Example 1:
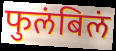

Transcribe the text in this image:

फुलंबिलं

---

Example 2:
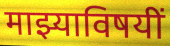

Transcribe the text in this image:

माझ्याविषयीं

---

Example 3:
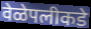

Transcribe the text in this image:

वेळेपलीकडे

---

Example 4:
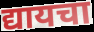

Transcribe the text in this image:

द्यायचा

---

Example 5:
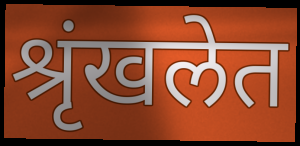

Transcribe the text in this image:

श्रृंखलेत